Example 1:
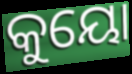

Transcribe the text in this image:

କୁୟୋ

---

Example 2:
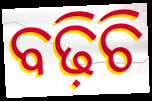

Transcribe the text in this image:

ବଢ଼ିଚି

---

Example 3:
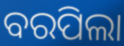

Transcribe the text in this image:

ବରପିଲା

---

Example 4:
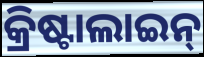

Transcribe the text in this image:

କ୍ରିଷ୍ଟାଲାଇନ୍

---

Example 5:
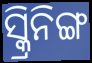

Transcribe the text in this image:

ସ୍କ୍ରିନିଙ୍ଗ